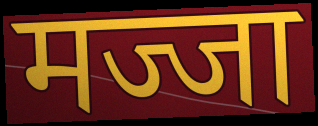
मज्जा